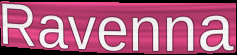
Ravenna